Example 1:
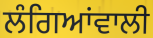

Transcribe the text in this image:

ਲੰਗਿਆਂਵਾਲੀ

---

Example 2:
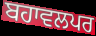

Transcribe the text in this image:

ਬਹਾਵਲਪਰ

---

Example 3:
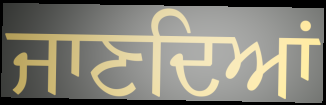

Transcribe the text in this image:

ਜਾਣਦਿਆਂ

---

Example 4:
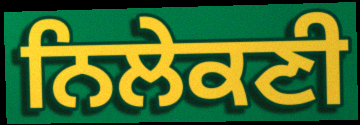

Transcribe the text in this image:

ਨਿਲੇਕਣੀ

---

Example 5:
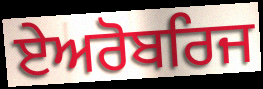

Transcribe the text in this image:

ਏਅਰੋਬਰਿਜ